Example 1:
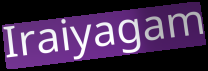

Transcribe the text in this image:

Iraiyagam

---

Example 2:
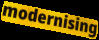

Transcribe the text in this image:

modernising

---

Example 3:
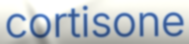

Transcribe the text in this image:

cortisone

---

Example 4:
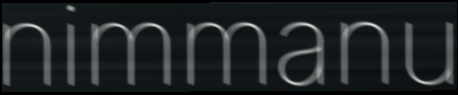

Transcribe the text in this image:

nimmanu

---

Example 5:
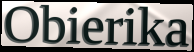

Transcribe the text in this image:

Obierika